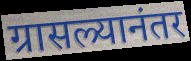
ग्रासल्यानंतर